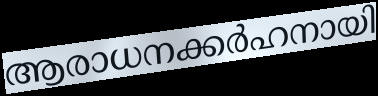
ആരാധനക്കർഹനായി